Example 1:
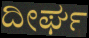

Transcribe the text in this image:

ದೀರ್ಘ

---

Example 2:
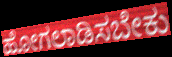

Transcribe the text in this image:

ಹೋಗಲಾಡಿಸಬೇಕು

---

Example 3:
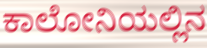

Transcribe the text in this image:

ಕಾಲೋನಿಯಲ್ಲಿನ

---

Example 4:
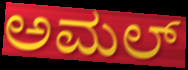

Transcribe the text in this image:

ಅಮಲ್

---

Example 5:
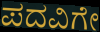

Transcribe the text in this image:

ಪದವಿಗೇ